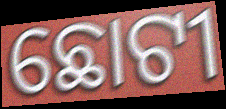
ଛୋଟୀ